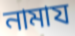
নামায